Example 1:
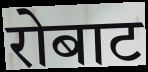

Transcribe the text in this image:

रोबाट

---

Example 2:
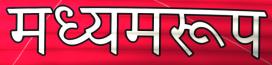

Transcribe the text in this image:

मध्यमरूप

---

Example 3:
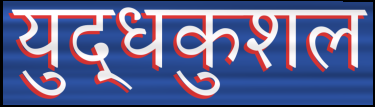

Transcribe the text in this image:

युद्धकुशल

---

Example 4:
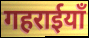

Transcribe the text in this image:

गहराईयाँ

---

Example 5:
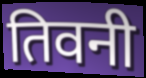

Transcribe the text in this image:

तिवनी